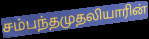
சம்பந்தமுதலியாரின்